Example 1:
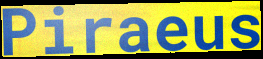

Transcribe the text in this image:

Piraeus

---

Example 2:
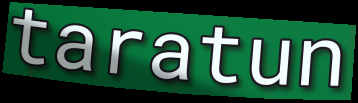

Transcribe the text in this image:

taratun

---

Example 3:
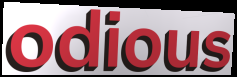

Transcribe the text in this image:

odious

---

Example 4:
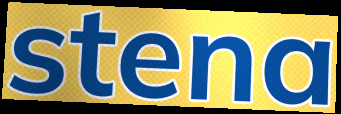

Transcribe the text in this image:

stena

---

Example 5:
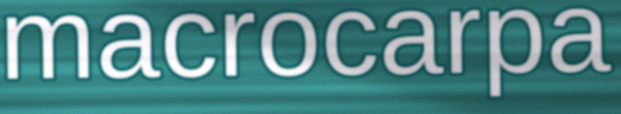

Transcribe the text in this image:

macrocarpa